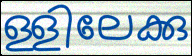
ള്ളിലേക്കു